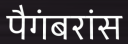
पैगंबरांस